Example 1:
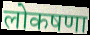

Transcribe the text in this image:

लोकषणा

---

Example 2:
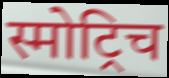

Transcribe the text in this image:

स्मोट्रिच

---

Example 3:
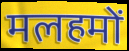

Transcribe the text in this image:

मलहमों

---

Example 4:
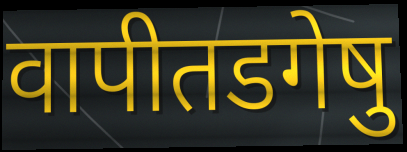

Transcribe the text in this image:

वापीतडगेषु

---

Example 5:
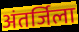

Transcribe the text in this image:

अंतर्जिला